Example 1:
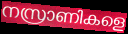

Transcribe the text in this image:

നസ്രാണികളെ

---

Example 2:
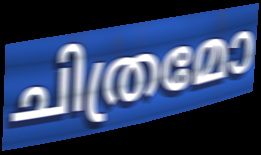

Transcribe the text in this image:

ചിത്രമോ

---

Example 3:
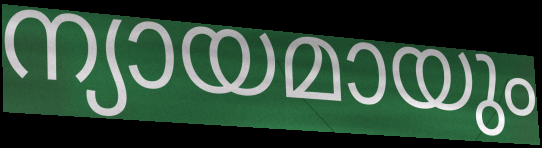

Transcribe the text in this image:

ന്യായമായും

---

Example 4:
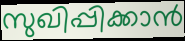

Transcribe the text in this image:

സുഖിപ്പിക്കാൻ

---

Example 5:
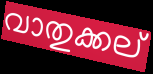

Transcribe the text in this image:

വാതുക്കല്